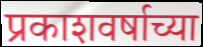
प्रकाशवर्षाच्या